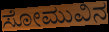
ಸೋಮುವಿನ